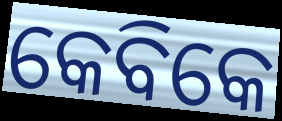
କେବିକେ